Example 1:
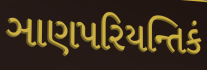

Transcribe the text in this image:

ઞાણપરિયન્તિકં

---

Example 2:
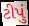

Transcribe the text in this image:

ટીપું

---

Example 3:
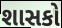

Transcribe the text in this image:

શાસકો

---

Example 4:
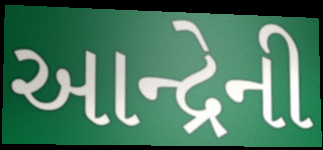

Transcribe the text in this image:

આન્દ્રેની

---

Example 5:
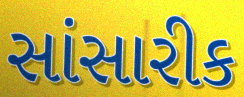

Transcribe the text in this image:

સાંસારીક